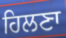
ਹਿਲਣਾ